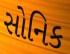
સોનિક